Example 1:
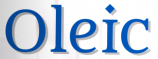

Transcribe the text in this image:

Oleic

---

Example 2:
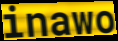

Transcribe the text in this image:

inawo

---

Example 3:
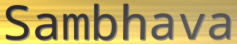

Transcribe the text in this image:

Sambhava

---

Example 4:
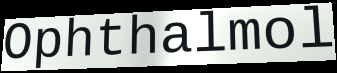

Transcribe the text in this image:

Ophthalmol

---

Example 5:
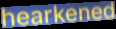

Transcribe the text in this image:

hearkened